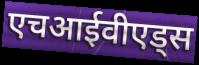
एचआईवीएड्स